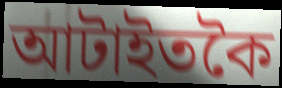
আটাইতকৈ